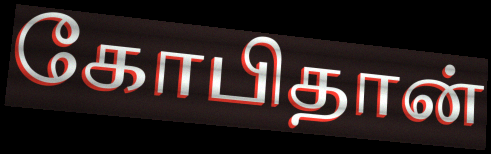
கோபிதான்